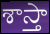
శాస్తా